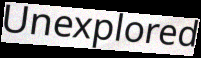
Unexplored